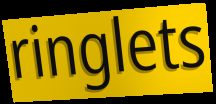
ringlets